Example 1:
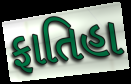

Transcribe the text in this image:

ફાતિહા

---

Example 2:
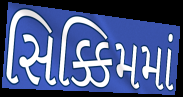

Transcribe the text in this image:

સિક્કિમમાં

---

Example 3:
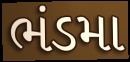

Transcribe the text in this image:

ભંડમા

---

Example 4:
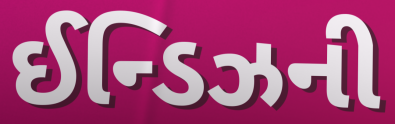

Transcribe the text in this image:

ઈન્ડિઝની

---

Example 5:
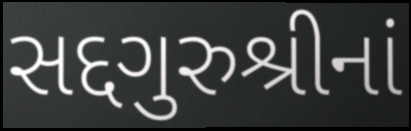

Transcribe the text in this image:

સદ્દગુરુશ્રીનાં